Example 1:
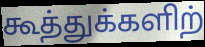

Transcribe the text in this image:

கூத்துக்களிற்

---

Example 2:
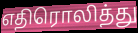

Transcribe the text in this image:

எதிரொலித்து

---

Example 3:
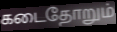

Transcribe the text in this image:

கடைதோறும்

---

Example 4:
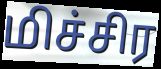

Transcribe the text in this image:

மிச்சிர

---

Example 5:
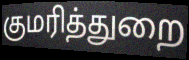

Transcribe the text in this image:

குமரித்துறை